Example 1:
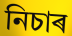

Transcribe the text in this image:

নিচাৰ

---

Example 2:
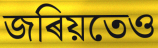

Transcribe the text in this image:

জৰিয়তেও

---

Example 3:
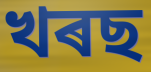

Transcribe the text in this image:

খৰছ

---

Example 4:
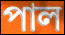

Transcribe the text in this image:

পাল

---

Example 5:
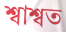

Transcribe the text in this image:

শ্বাশ্বত